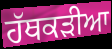
ਹੱਥਕੜੀਆ